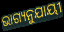
ଭାଗ୍ୟନୁଯାୟୀ